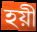
হয়ী